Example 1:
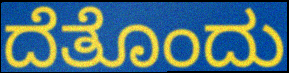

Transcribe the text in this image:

ದೆತೊಂದು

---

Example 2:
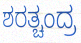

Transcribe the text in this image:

ಶರತ್ಚಂದ್ರ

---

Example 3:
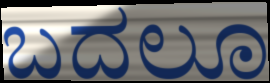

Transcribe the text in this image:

ಬದಲೂ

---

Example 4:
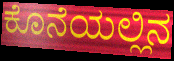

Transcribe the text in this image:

ಕೊನೆಯಲ್ಲಿನ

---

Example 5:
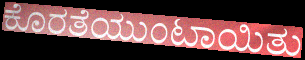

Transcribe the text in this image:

ಕೊರತೆಯುಂಟಾಯಿತು